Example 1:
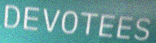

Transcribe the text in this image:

DEVOTEES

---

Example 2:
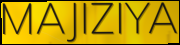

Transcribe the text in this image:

MAJIZIYA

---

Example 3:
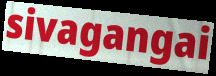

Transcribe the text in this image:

sivagangai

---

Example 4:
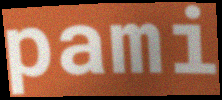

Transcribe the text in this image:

pami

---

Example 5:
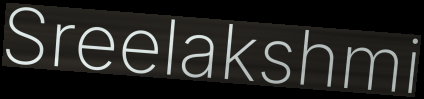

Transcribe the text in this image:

Sreelakshmi